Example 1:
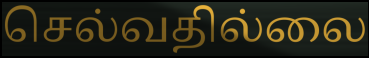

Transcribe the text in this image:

செல்வதில்லை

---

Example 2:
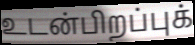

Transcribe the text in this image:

உடன்பிறப்புக்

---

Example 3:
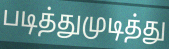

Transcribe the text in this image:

படித்துமுடித்து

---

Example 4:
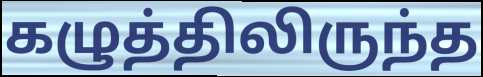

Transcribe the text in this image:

கழுத்திலிருந்த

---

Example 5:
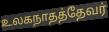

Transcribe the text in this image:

உலகநாதத்தேவர்